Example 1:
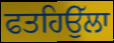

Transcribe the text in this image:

ਫਤਹਿਉੱਲਾ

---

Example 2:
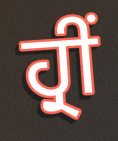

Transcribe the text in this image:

ਹ੍ਰੀਂ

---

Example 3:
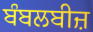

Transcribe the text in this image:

ਬੰਬਲਬੀਜ਼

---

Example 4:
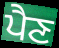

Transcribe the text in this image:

ਪੈਣ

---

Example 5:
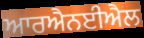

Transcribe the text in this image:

ਆਰਐਨਈਐਲ